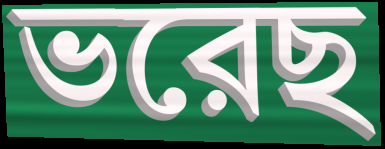
ভরেছ